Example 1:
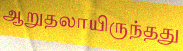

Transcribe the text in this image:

ஆறுதலாயிருந்தது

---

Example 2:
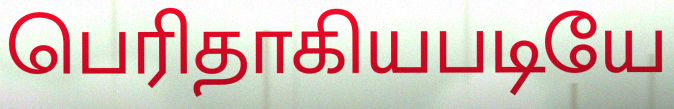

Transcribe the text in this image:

பெரிதாகியபடியே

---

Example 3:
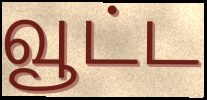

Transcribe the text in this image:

வூட்ட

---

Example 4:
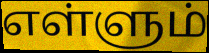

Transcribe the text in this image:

எள்ளும்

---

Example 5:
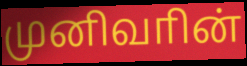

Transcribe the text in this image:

முனிவரின்